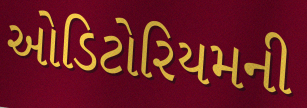
ઓડિટોરિયમની